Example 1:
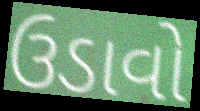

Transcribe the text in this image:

ઉડાવો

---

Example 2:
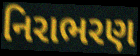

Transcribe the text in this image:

નિરાભરણ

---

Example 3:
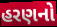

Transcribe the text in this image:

હરણનો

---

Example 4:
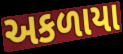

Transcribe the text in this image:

અકળાયા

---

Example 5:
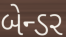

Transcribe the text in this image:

બેન્ડર